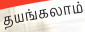
தயங்கலாம்